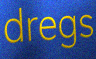
dregs